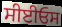
ਸੀਈਓਸ